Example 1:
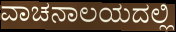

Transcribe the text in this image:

ವಾಚನಾಲಯದಲ್ಲಿ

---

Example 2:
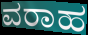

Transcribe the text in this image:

ವರಾಹ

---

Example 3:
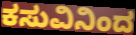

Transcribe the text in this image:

ಕಸುವಿನಿಂದ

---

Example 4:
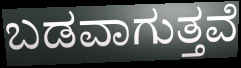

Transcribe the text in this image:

ಬಡವಾಗುತ್ತವೆ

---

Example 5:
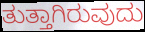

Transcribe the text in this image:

ತುತ್ತಾಗಿರುವುದು